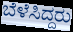
ಬೆಳೆಸಿದ್ದರು